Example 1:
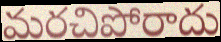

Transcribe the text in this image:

మరచిపోరాదు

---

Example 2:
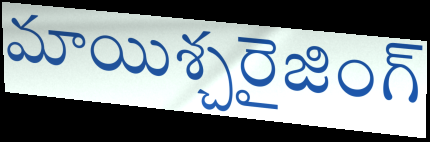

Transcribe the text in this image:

మాయిశ్చరైజింగ్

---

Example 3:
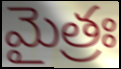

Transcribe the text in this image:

మైత్రః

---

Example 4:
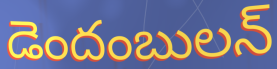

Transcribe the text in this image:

డెందంబులన్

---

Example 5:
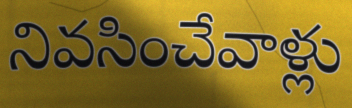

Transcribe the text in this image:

నివసించేవాళ్లు